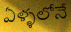
ఏళ్ళలోనే